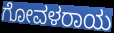
ಗೋವಳರಾಯ